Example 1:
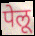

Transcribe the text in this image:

पेलू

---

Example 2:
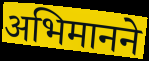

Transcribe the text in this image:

अभिमानने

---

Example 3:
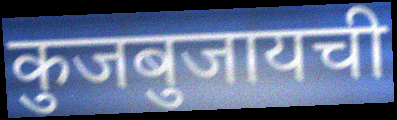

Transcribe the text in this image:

कुजबुजायची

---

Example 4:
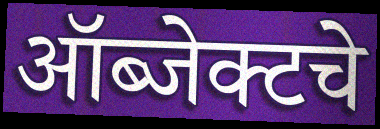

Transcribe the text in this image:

ऑब्जेक्टचे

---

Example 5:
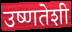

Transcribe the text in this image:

उष्णतेशी